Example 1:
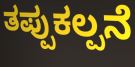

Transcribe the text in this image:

ತಪ್ಪುಕಲ್ಪನೆ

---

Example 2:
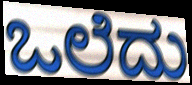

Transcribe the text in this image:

ಒಲೆದು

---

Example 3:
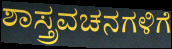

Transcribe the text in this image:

ಶಾಸ್ತ್ರವಚನಗಳಿಗೆ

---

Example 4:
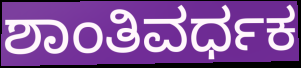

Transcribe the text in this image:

ಶಾಂತಿವರ್ಧಕ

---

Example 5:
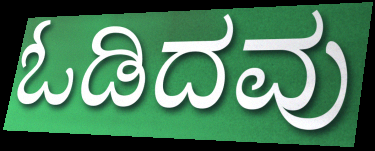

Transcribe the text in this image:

ಓಡಿದವು